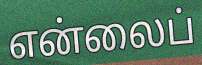
என்லைப்